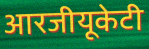
आरजीयूकेटी